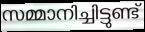
സമ്മാനിച്ചിട്ടുണ്ട്